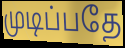
முடிப்பதே